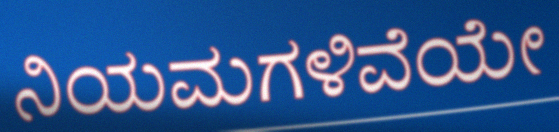
ನಿಯಮಗಳಿವೆಯೇ